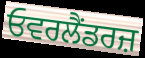
ਓਵਰਲੈਂਡਰਜ਼